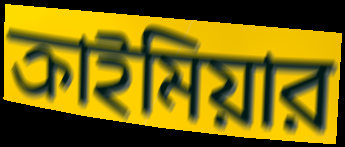
ক্রাইমিয়ার